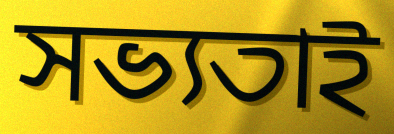
সভ্যতাই